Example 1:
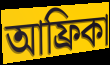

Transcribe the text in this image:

আফ্ৰিকা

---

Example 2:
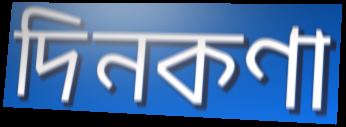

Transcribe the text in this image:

দিনকণা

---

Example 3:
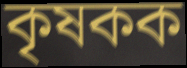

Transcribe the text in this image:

কৃষকক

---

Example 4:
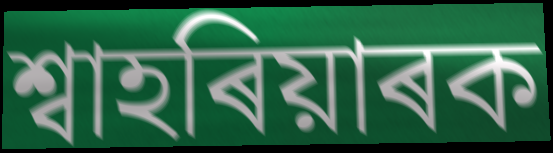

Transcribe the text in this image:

শ্বাহৰিয়াৰক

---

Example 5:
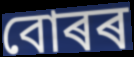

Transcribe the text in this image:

বোৰৰ